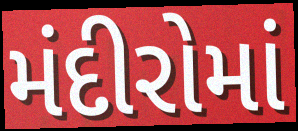
મંદીરોમાં